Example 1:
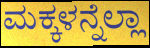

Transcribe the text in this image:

ಮಕ್ಕಳನ್ನೆಲ್ಲಾ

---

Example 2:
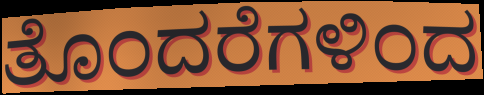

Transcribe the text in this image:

ತೊಂದರೆಗಳಿಂದ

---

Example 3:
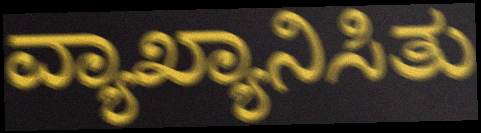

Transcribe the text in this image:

ವ್ಯಾಖ್ಯಾನಿಸಿತು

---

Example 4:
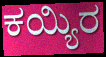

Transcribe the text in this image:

ಕಯ್ಯಿರ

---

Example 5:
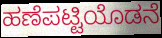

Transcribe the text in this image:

ಹಣೆಪಟ್ಟಿಯೊಡನೆ